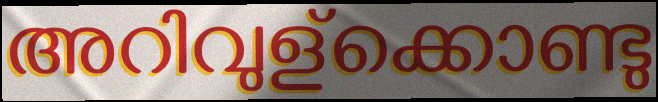
അറിവുള്ക്കൊണ്ടു